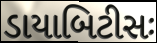
ડાયાબિટીસઃ